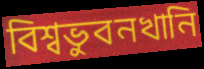
বিশ্বভুবনখানি